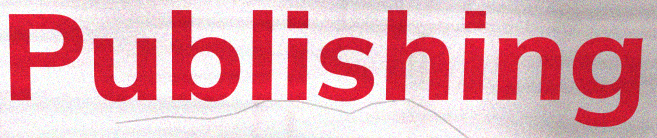
Publishing